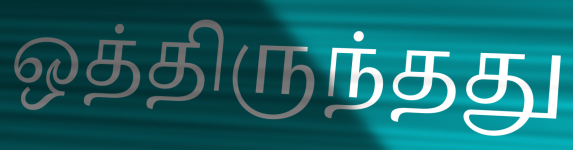
ஒத்திருந்தது